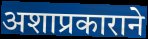
अशाप्रकाराने